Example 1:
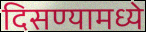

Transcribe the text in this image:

दिसण्यामध्ये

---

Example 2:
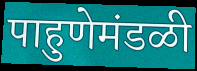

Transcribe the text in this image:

पाहुणेमंडळी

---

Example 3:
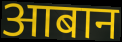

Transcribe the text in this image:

आबान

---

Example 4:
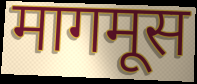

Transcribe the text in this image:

मागमूस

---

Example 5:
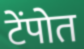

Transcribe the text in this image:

टेंपोत